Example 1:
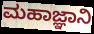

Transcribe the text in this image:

ಮಹಾಜ್ಞಾನಿ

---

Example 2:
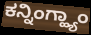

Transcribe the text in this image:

ಕನ್ನಿಂಗ್ಹ್ಯಾಂ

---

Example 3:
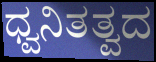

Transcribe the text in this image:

ಧ್ವನಿತತ್ವದ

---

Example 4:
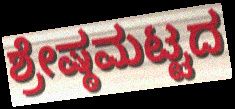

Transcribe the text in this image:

ಶ್ರೇಷ್ಠಮಟ್ಟದ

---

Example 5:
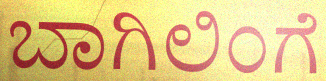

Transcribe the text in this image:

ಬಾಗಿಲಿಂಗೆ